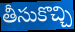
తీసుకొచ్చి